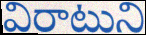
విరాటుని